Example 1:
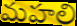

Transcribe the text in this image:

మహలి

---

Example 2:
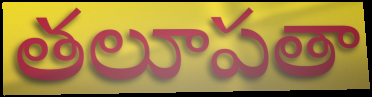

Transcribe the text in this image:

తలూపతా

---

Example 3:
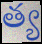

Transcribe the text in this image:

త్య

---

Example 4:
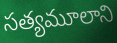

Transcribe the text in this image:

సత్యమూలాని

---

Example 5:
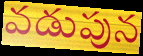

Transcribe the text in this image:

వడుపున